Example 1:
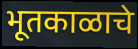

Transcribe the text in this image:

भूतकाळाचे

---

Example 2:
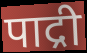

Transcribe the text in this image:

पाद्री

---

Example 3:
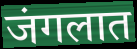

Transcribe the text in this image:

जंगलात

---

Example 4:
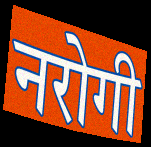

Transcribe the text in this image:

नरोगी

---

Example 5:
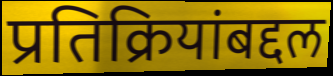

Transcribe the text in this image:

प्रतिक्रियांबद्दल